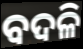
ବଦଳି